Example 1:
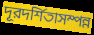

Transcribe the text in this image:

দূরদর্শিতাসম্পন্ন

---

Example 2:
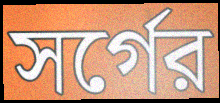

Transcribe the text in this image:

সর্গের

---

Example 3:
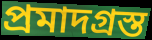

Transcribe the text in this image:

প্রমাদগ্রস্ত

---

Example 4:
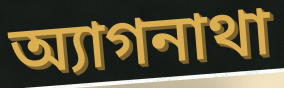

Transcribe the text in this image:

অ্যাগনাথা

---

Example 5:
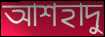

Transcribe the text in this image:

আশহাদু